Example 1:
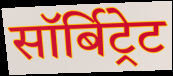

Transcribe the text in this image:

सॉर्बिट्रेट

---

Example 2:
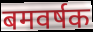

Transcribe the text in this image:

बमवर्षक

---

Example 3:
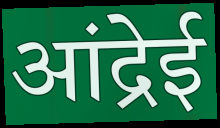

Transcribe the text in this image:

आंद्रेई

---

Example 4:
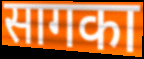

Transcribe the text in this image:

सागका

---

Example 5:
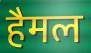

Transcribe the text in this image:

हैमल